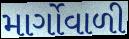
માર્ગોવાળી